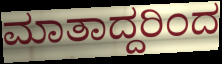
ಮಾತಾದ್ದರಿಂದ